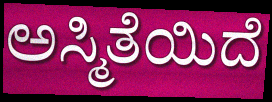
ಅಸ್ಮಿತೆಯಿದೆ